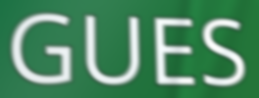
GUES